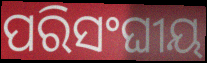
ପରିସଂଘୀୟ